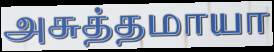
அசுத்தமாயா